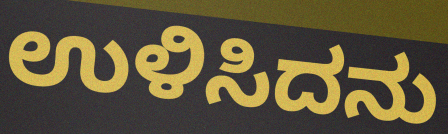
ಉಳಿಸಿದನು